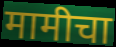
मामीचा